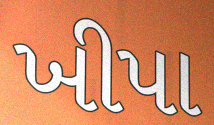
ખીપા